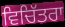
ਵਿਚਿੱਤਰਾ